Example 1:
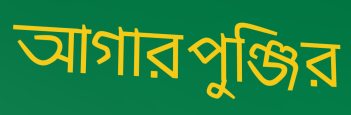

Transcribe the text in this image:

আগারপুঞ্জির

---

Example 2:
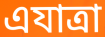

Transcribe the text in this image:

এযাত্রা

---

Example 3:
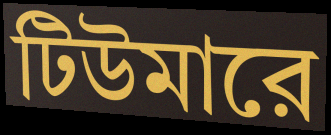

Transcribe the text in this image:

টিউমারে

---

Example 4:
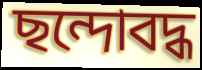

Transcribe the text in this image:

ছন্দোবদ্ধ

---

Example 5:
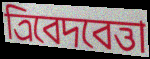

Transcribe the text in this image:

ত্রিবেদবেত্তা